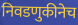
निवडणुकीनेच